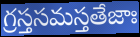
గ్రస్తసమస్తతేజాః